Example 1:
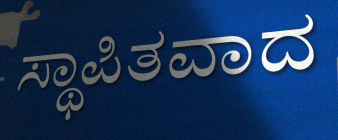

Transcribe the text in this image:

ಸ್ಥಾಪಿತವಾದ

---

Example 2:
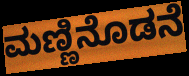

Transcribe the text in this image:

ಮಣ್ಣಿನೊಡನೆ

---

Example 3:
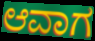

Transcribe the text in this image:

ಆವಾಗ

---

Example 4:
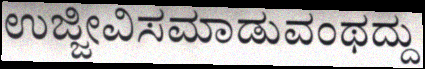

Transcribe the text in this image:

ಉಜ್ಜೀವಿಸಮಾಡುವಂಥದ್ದು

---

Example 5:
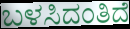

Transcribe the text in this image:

ಬಳಸಿದಂತಿದೆ